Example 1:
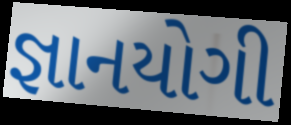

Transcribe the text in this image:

જ્ઞાનયોગી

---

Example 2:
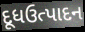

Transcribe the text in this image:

દૂધઉત્પાદન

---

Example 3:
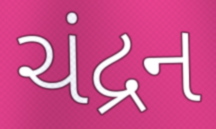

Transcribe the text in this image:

ચંદ્રન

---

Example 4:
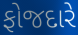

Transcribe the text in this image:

ફોજદારે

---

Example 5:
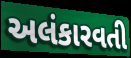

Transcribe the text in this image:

અલંકારવતી